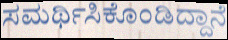
ಸಮರ್ಥಿಸಿಕೊಂಡಿದ್ದಾನೆ